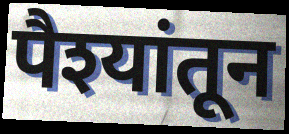
पैश्यांतून